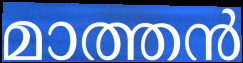
മാത്തൻ